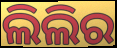
ଲିଲିର